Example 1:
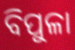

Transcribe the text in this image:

ବିପୁଳା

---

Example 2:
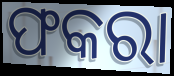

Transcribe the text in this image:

ଫକରା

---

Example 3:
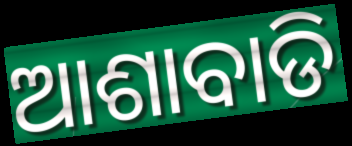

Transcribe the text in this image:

ଆଶାବାଡି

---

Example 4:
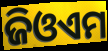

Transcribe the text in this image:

ଜିଓଏମ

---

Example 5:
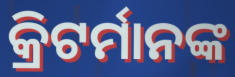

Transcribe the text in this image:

କ୍ରିଟର୍ମାନଙ୍କ